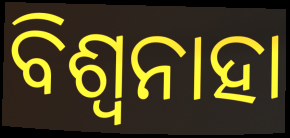
ବିଶ୍ଵନାହା